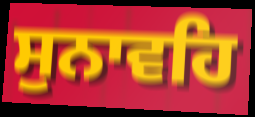
ਸੁਨਾਵਹਿ